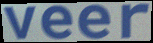
veer